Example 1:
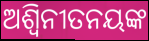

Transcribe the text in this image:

ଅଶ୍ୱିନୀତନୟଙ୍କ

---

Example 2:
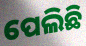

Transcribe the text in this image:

ପେଲିଛି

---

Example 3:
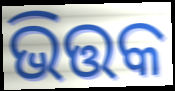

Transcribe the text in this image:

ଭିତ୍ତକ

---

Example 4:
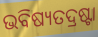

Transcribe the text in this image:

ଭବିଷ୍ୟତଦ୍ରଷ୍ଟା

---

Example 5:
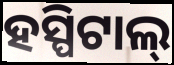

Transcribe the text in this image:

ହସ୍ପିଟାଲ୍